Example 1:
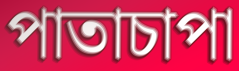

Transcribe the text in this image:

পাতাচাপা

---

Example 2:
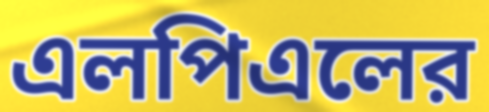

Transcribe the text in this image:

এলপিএলের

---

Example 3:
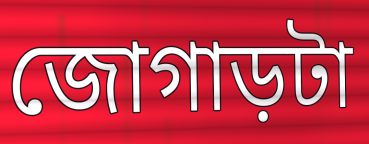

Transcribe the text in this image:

জোগাড়টা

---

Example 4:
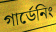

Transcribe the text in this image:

গার্ডেনিং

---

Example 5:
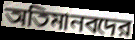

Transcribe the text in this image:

অতিমানবদের